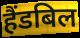
हैंडबिल